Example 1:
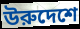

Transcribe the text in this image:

উরুদেশে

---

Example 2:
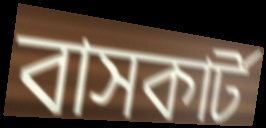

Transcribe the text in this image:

বাসকার্ট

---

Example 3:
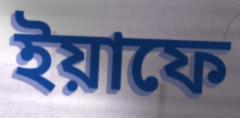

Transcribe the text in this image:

ইয়াফে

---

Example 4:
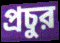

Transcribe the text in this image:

প্রচুর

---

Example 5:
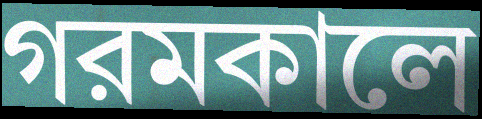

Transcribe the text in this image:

গরমকালে